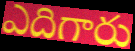
ఎదిగారు